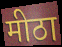
मीठा